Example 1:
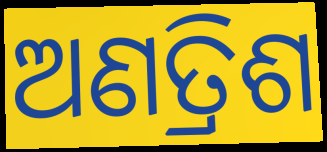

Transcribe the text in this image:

ଅଣତ୍ରିଶ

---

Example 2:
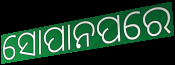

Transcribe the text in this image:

ସୋପାନପରେ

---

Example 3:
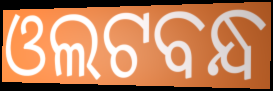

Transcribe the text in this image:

ଓଲଟବନ୍ଧ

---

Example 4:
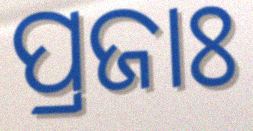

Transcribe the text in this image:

ପ୍ରଜାଃ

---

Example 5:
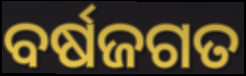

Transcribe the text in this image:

ବର୍ଷଜଗତ